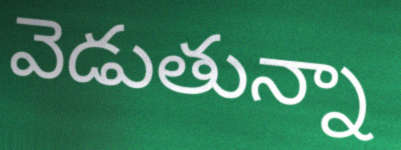
వెడుతున్నా